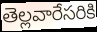
తెల్లవారేసరికి